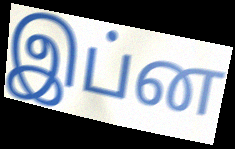
இப்ன